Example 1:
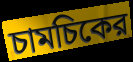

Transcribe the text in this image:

চামচিকের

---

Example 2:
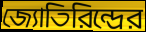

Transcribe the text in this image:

জ্যোতিরিন্দ্রের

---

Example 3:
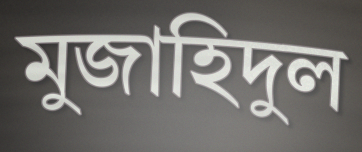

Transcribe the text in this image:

মুজাহিদুল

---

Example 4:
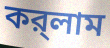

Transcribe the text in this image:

কর্‌লাম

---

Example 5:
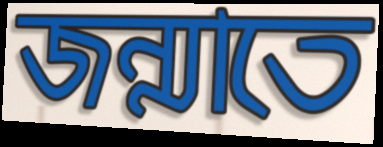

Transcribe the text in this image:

জন্মাতে